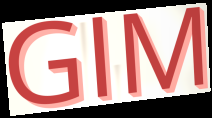
GIM